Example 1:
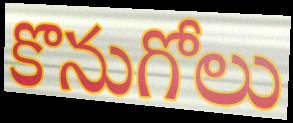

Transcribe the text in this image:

కొనుగోలు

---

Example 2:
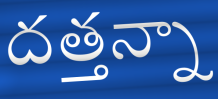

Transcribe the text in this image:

దత్తన్నా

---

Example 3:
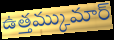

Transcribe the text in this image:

ఉత్తమ్కుమార్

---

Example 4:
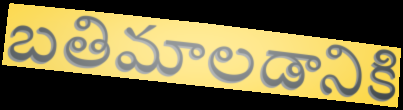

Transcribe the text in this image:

బతిమాలడానికి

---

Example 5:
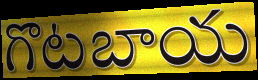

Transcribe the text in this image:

గొటబాయ